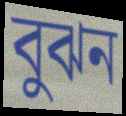
বুঝন